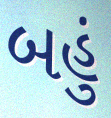
બહું